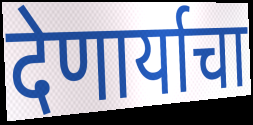
देणार्याचा